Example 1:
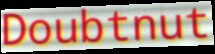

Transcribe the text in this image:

Doubtnut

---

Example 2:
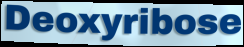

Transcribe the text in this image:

Deoxyribose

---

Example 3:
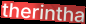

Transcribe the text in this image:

therintha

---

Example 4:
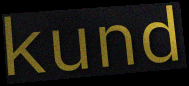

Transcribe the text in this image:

kund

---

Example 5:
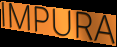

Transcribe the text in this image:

IMPURA